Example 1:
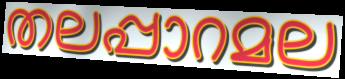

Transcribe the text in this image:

തലപ്പാറമല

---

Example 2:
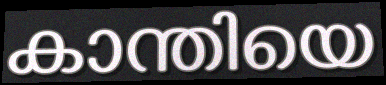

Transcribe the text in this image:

കാന്തിയെ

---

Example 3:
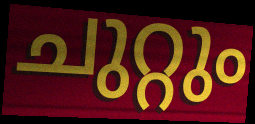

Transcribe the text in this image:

ചുറ്റും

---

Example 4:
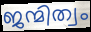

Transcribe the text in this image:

ജന്മിത്വം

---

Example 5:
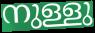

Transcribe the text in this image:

നുള്ളു